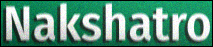
Nakshatro